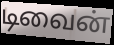
டிவைன்